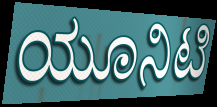
ಯೂನಿಟಿ